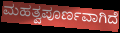
ಮಹತ್ವಪೂರ್ಣವಾಗಿದೆ